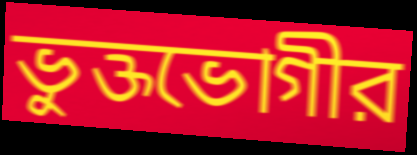
ভুক্তভোগীর